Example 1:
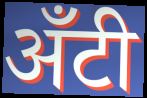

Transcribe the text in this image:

अँटी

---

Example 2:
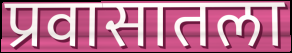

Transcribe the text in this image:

प्रवासातला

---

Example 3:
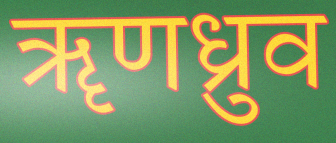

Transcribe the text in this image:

ॠणध्रुव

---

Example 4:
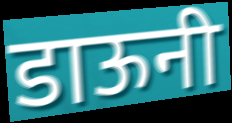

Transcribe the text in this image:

डाऊनी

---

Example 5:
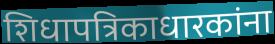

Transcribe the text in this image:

शिधापत्रिकाधारकांना